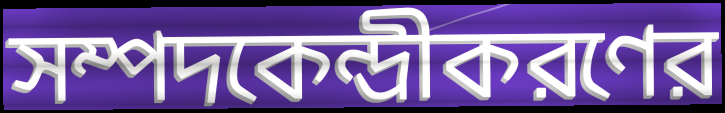
সম্পদকেন্দ্রীকরণের